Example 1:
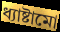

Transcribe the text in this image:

ধ্যাষ্টামো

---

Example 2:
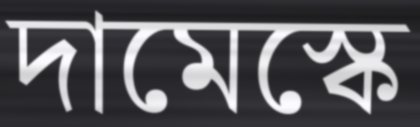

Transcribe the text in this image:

দামেস্কে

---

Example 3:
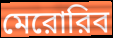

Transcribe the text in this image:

মেরোরিব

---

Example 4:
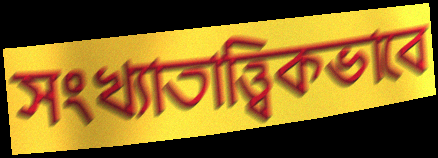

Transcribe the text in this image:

সংখ্যাতাত্ত্বিকভাবে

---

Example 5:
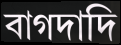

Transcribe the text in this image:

বাগদাদি